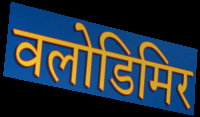
वलोडिमिर